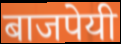
बाजपेयी